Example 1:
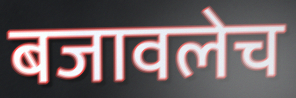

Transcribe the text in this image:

बजावलेच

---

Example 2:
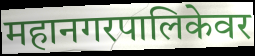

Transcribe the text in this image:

महानगरपालिकेवर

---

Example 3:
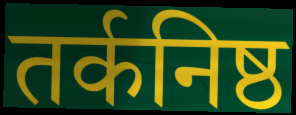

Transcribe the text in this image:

तर्कनिष्ठ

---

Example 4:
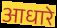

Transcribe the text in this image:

आधारे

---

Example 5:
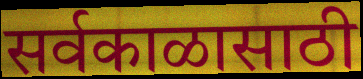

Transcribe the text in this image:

सर्वकाळासाठी